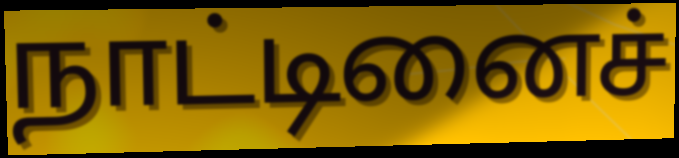
நாட்டினைச்